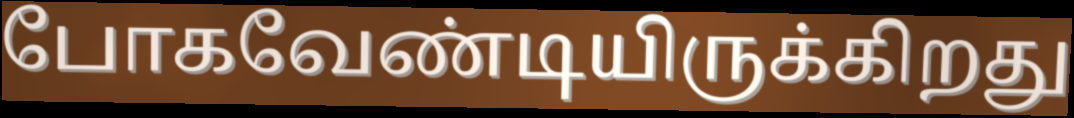
போகவேண்டியிருக்கிறது